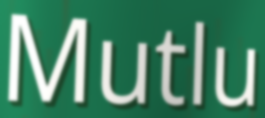
Mutlu